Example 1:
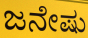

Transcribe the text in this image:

ಜನೇಷು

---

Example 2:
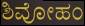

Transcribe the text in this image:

ಶಿವೋಹಂ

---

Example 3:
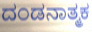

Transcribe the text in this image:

ದಂಡನಾತ್ಮಕ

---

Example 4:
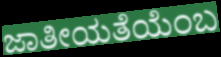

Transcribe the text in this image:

ಜಾತೀಯತೆಯೆಂಬ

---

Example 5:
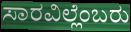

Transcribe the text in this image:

ಸಾರವಿಲ್ಲೆಂಬರು